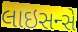
લાઇસન્સે